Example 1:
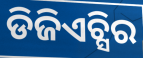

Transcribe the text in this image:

ଡିଜିଏଚ୍ସିର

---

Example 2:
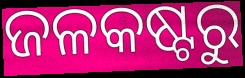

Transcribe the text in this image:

ଜଳକଷ୍ଟରୁ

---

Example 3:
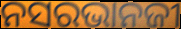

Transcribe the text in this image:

ନସରଭାନଜୀ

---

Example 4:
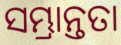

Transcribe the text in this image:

ସମ୍ଭ୍ରାନ୍ତତା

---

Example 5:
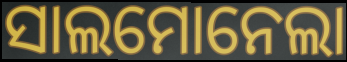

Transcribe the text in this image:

ସାଲମୋନେଲା